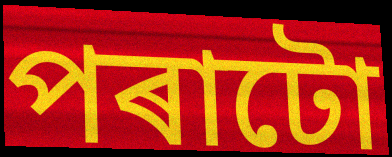
পৰাটো